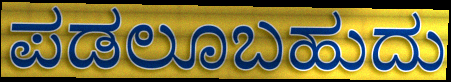
ಪಡಲೂಬಹುದು